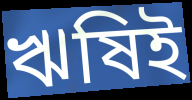
ঋষিই